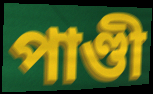
পাণ্ডী